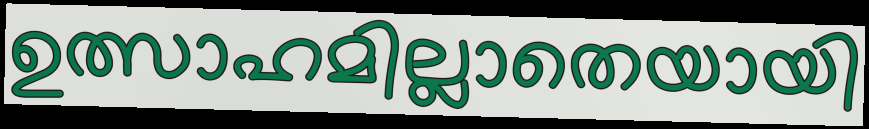
ഉത്സാഹമില്ലാതെയായി